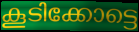
കൂടിക്കോട്ടെ